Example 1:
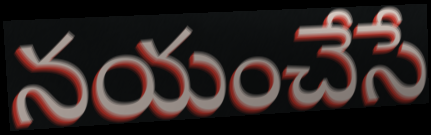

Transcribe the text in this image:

నయంచేసే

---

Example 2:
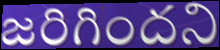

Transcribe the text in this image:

జరిగిందని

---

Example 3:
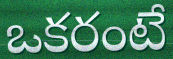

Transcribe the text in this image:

ఒకరంటే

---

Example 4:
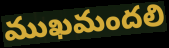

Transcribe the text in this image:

ముఖమందలి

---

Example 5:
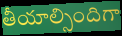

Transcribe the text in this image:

తీయాల్సిందిగా